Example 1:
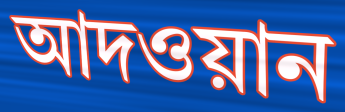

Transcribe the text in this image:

আদওয়ান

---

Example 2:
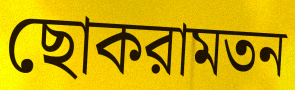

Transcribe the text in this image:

ছোকরামতন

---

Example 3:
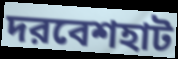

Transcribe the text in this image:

দরবেশহাট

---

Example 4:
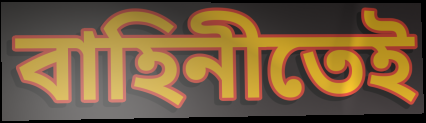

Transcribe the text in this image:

বাহিনীতেই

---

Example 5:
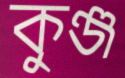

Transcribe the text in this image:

কুঞ্জ